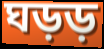
ঘড়ড়